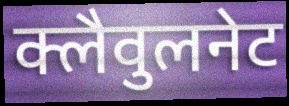
क्लैवुलनेट